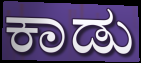
ಕಾಡು